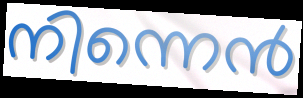
നിന്നെൻ